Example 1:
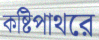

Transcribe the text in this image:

কষ্টিপাথরে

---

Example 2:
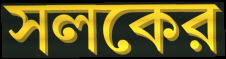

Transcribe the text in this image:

সলকের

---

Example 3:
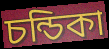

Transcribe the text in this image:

চন্ডিকা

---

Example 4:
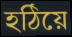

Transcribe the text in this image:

হঠিয়ে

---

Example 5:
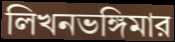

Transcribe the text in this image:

লিখনভঙ্গিমার